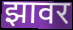
झावर